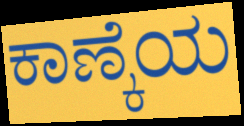
ಕಾಣ್ಕೆಯ